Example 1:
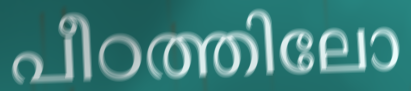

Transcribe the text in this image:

പീഠത്തിലോ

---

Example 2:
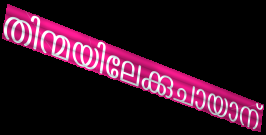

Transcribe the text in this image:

തിന്മയിലേക്കുചായാന്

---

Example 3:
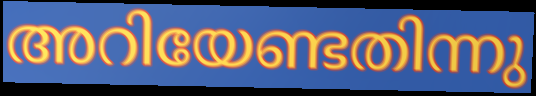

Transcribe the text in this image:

അറിയേണ്ടതിന്നു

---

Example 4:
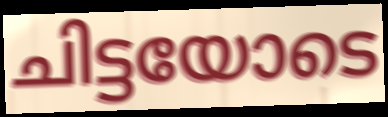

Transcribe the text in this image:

ചിട്ടയോടെ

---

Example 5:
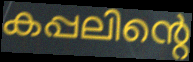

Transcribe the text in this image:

കപ്പലിന്റെ